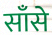
साँसे